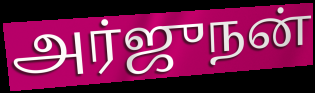
அர்ஜுநன்